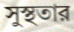
সুস্থতার